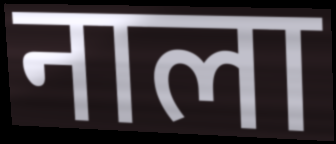
नाला